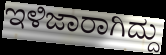
ಇಳಿಜಾರಾಗಿದ್ದು